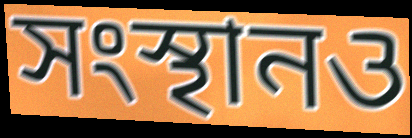
সংস্থানও